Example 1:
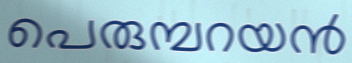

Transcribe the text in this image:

പെരുമ്പറയൻ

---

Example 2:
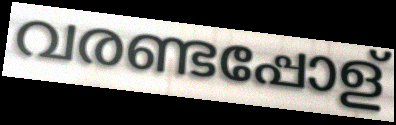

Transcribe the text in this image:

വരണ്ടപ്പോള്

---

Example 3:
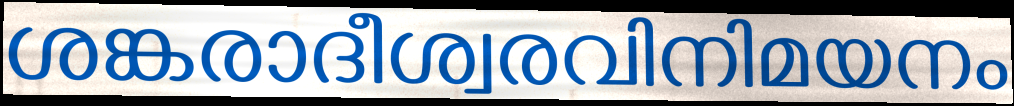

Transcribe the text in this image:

ശങ്കരാദീശ്വരവിനിമയനം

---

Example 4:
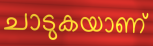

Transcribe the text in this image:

ചാടുകയാണ്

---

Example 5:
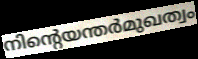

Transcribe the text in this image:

നിന്റെയന്തർമുഖത്വം